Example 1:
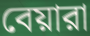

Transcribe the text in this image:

বেয়ারা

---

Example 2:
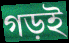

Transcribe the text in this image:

গড়ই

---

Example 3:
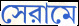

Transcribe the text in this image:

সেরামে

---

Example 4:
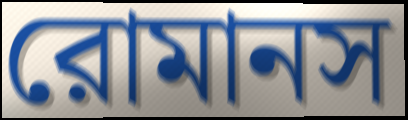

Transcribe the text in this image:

রোমানস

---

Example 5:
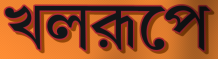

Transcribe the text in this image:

খলরূপে